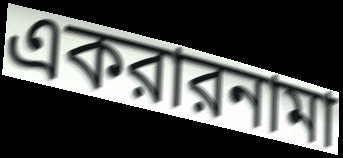
একরারনামা